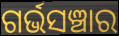
ଗର୍ଭସଞ୍ଚାର